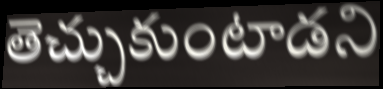
తెచ్చుకుంటాడని